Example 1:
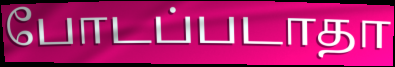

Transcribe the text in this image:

போடப்படாதா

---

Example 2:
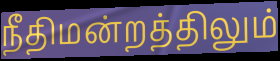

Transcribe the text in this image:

நீதிமன்றத்திலும்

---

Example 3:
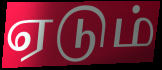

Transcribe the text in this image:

ஏடும்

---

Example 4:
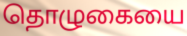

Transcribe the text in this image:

தொழுகையை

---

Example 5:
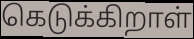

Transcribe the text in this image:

கெடுக்கிறாள்